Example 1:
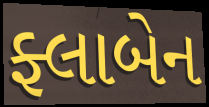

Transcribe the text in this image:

ફ્લાબેન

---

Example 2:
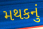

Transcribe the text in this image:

મથકનું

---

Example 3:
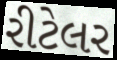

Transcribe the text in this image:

રીટેલર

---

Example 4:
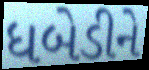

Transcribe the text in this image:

ધબેડીને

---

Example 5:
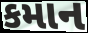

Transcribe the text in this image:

કમાન